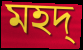
মহদ্